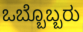
ಒಬ್ಬೊಬ್ಬರು